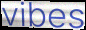
vibes